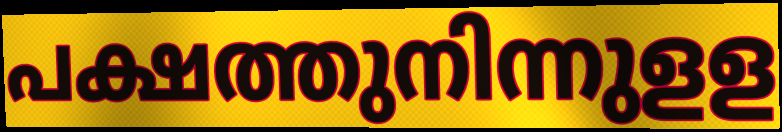
പക്ഷത്തുനിന്നുളള